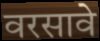
वरसावे